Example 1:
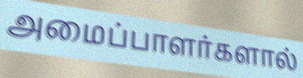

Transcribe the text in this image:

அமைப்பாளர்களால்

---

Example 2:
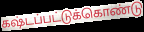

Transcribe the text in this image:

கஷ்டப்பட்டுக்கொண்டு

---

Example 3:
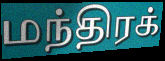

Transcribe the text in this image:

மந்திரக்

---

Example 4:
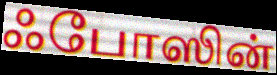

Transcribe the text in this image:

ஃபோஸின்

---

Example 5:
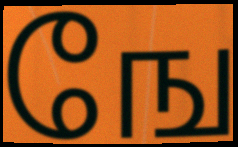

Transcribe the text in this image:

ஙே